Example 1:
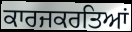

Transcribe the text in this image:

ਕਾਰਜਕਰਤਿਆਂ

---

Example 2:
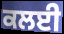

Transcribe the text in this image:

ਕਲਈ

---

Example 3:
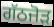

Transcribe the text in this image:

ਗੱਠਜੋੜ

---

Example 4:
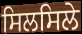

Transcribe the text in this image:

ਸਿਲਸਿਲੇ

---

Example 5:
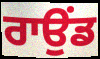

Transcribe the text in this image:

ਰਾਉਂਡ